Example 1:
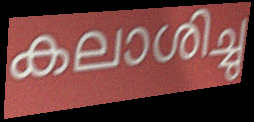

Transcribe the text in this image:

കലാശിച്ചു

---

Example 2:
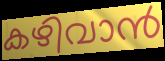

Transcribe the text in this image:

കഴിവാൻ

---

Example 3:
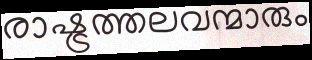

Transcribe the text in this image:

രാഷ്ട്രത്തലവന്മാരും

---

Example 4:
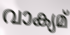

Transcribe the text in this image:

വാക്യമ്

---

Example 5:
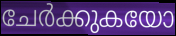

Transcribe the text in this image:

ചേർക്കുകയോ